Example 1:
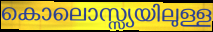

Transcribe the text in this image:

കൊലൊസ്സ്യയിലുള്ള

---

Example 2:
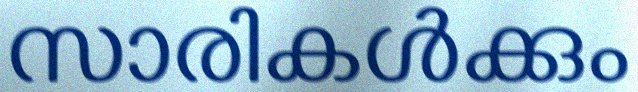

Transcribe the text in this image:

സാരികൾക്കും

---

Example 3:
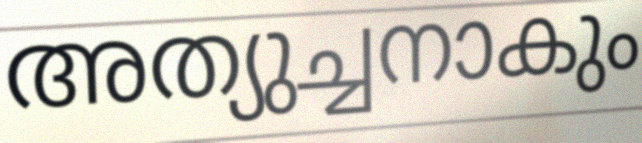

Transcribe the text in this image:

അത്യുച്ചനാകും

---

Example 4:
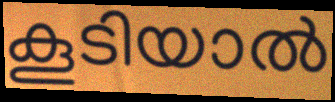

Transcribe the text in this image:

കൂടിയാൽ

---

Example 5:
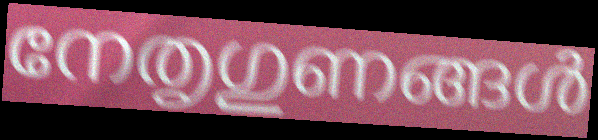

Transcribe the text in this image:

നേതൃഗുണങ്ങൾ